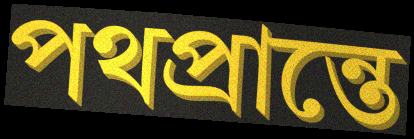
পথপ্রান্তে